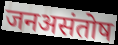
जनअसंतोष